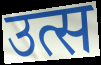
उत्स